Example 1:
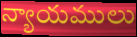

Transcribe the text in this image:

న్యాయములు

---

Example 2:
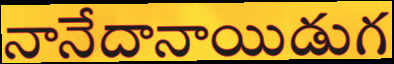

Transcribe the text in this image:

నానేదానాయిడుగ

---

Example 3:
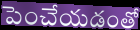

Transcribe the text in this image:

పెంచేయడంతో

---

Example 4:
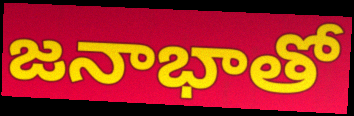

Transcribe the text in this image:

జనాభాతో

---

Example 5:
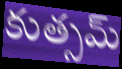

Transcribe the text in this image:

కుత్సమ్